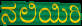
ನಲಿಯಿರಿ